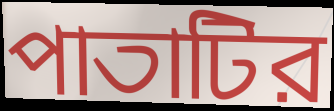
পাতাটির